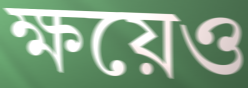
ক্ষয়েও